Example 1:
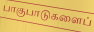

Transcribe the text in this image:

பாகுபாடுகளைப்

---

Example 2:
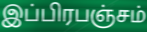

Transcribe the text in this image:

இப்பிரபஞ்சம்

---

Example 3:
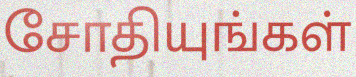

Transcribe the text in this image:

சோதியுங்கள்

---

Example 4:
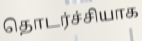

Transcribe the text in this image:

தொடர்ச்சியாக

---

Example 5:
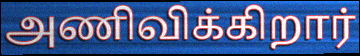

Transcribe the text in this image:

அணிவிக்கிறார்